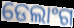
ଡେଲାଂଗ